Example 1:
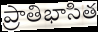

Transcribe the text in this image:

ప్రాతిభాసిత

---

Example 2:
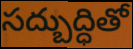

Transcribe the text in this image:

సద్బుద్ధితో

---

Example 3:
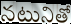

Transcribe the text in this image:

నటునితో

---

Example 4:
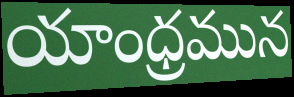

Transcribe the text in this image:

యాంధ్రమున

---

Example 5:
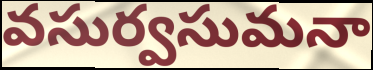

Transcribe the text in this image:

వసుర్వసుమనా